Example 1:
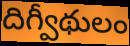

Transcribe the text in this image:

దిగ్వీథులం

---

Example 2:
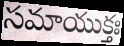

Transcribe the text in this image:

సమాయుక్తః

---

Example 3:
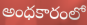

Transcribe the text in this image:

అంధకారంలో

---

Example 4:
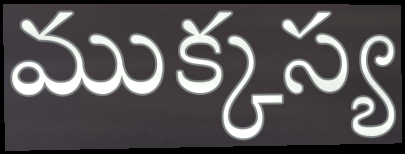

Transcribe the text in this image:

ముక్కస్య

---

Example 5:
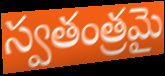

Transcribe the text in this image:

స్వతంత్రమై